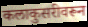
कलाकुसरीवरून